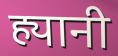
ह्यानी